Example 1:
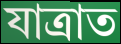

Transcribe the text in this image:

যাত্ৰাত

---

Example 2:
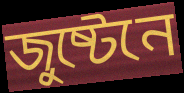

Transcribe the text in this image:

জুষ্টেনে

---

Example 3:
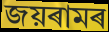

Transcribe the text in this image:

জয়ৰামৰ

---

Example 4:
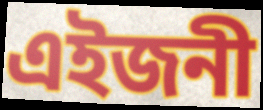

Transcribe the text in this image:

এইজনী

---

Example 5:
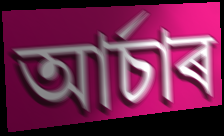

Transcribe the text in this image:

আৰ্চাৰ